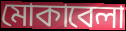
মোকাবেলা